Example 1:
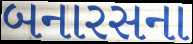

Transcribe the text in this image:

બનારસના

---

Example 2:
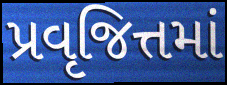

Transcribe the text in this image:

પ્રવૃજિત્તમાં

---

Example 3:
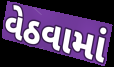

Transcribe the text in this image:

વેઠવામાં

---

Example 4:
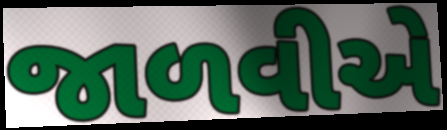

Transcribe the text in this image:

જાળવીએ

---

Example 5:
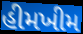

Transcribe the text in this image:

હીમખીમ